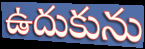
ఉదుకును